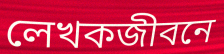
লেখকজীবনে